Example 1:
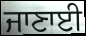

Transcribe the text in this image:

ਜਾਣਾਈ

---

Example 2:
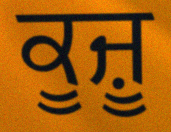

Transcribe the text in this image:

ਕੂਜ਼ੂ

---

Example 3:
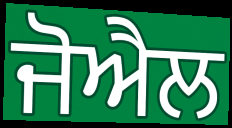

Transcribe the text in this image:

ਜੋਐਲ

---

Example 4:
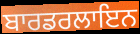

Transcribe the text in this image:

ਬਾਰਡਰਲਾਇਨ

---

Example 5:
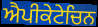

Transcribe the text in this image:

ਐਪੀਕੇਟੇਚਿਨ